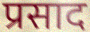
प्रसाद